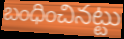
బంధించినట్టు